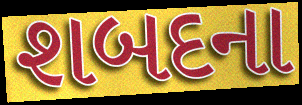
શબદના